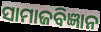
ସାମାଜବିଜ୍ଞାନ